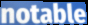
notable